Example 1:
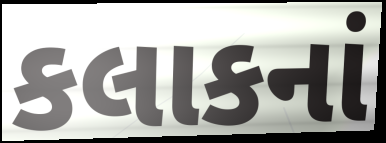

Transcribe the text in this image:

કલાકનાં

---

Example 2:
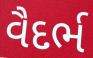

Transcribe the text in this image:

વૈદર્ભ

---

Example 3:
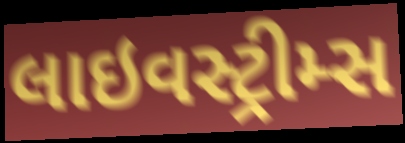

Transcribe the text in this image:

લાઇવસ્ટ્રીમ્સ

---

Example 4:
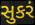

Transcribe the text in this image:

સુકરં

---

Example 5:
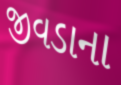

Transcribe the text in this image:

જીવડાના